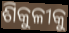
ଶିକୁଳୀକୁ